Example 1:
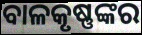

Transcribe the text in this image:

ବାଳକୃଷ୍ଣଙ୍କର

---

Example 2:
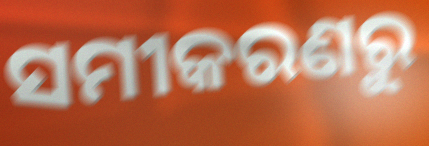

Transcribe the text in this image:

ସମୀକରଣରୁ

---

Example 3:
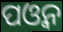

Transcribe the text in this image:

ପଓ୍ବନ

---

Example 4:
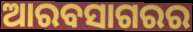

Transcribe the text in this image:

ଆରବସାଗରର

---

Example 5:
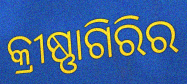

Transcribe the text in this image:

କ୍ରୀଷ୍ଣାଗିରିର